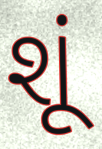
શૂં